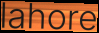
lahore